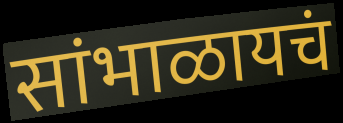
सांभाळायचं